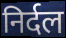
निर्दल